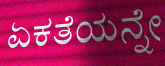
ಏಕತೆಯನ್ನೇ